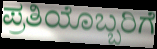
ಪ್ರತಿಯೊಬ್ಬರಿಗೆ